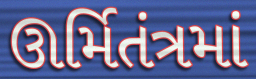
ઊર્મિતંત્રમાં